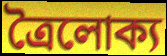
ত্রৈলোক্য